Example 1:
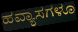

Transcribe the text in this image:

ಹವ್ಯಾಸಗಳೂ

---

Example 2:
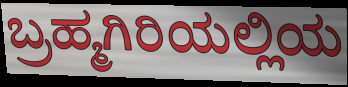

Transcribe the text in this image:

ಬ್ರಹ್ಮಗಿರಿಯಲ್ಲಿಯ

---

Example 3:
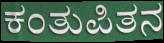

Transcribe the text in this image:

ಕಂತುಪಿತನ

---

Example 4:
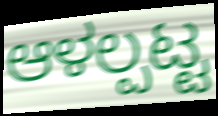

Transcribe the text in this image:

ಆಳಲ್ಪಟ್ಟ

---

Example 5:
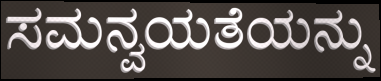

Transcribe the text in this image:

ಸಮನ್ವಯತೆಯನ್ನು